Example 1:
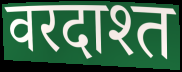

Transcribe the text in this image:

वरदाश्त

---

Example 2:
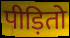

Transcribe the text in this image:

पीड़ितो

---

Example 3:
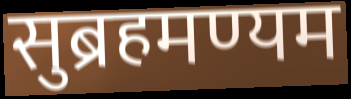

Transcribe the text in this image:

सुब्रहमण्यम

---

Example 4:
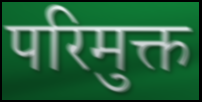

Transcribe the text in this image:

परिमुक्त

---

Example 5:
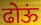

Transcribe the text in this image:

ढोऊं